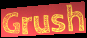
Grush